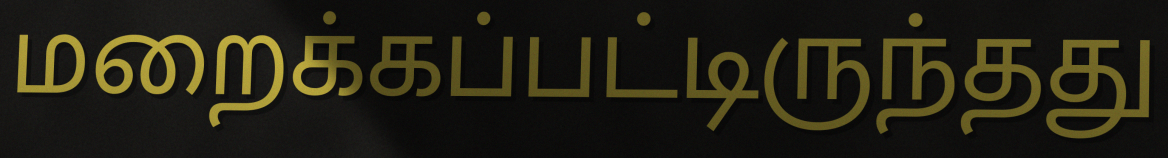
மறைக்கப்பட்டிருந்தது